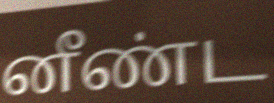
னீண்ட